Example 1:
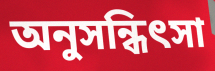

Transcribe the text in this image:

অনুসন্ধিৎসা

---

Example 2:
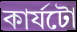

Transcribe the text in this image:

কাৰ্যটো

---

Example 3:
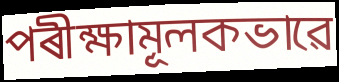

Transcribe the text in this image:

পৰীক্ষামূলকভাৱে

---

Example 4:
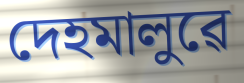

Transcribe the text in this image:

দেহমালুৱে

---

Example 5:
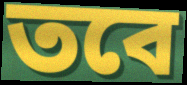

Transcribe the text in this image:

তবে